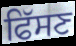
ਫਿੱਸਣ